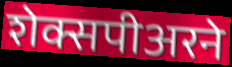
शेक्सपीअरने